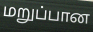
மறுப்பான